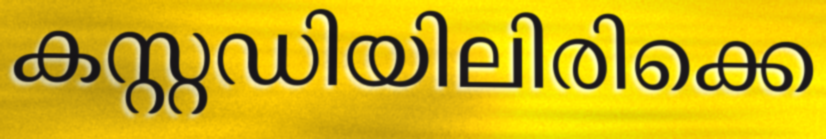
കസ്റ്റഡിയിലിരിക്കെ